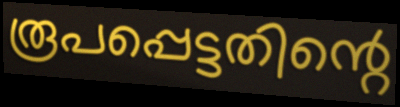
രൂപപ്പെട്ടതിന്റെ